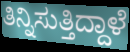
ತಿನ್ನಿಸುತ್ತಿದ್ದಾಳೆ